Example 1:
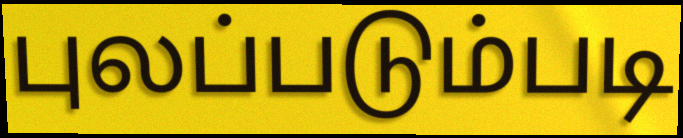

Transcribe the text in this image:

புலப்படும்படி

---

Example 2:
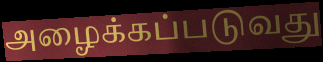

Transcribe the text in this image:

அழைக்கப்படுவது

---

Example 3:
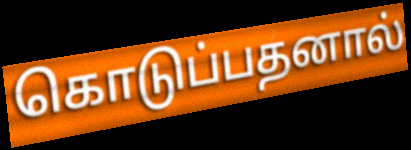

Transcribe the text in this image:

கொடுப்பதனால்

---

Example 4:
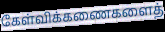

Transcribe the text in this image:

கேள்விக்கணைகளைத்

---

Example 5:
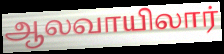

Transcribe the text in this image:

ஆலவாயிலார்